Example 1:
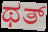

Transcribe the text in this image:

ಥತ್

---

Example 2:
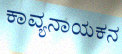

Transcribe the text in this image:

ಕಾವ್ಯನಾಯಕನ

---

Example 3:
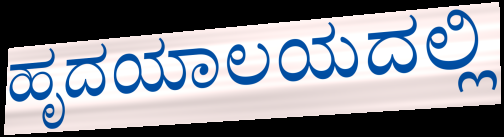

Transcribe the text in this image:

ಹೃದಯಾಲಯದಲ್ಲಿ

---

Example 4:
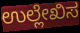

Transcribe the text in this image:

ಉಲ್ಲೇಖಿಸ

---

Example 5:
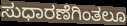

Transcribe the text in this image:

ಸುಧಾರಣೆಗಿಂತಲೂ